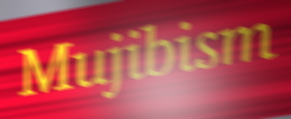
Mujibism